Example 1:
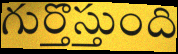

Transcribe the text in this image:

గుర్తొస్తుంది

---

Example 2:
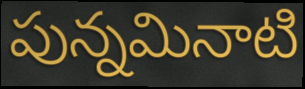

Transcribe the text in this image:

పున్నమినాటి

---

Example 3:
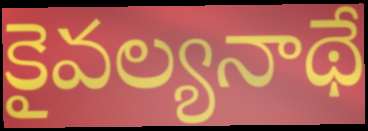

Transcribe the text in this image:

కైవల్యనాథే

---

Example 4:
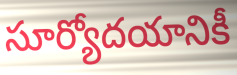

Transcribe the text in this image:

సూర్యోదయానికీ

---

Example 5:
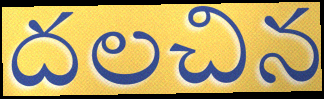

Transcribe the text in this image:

దలచిన